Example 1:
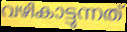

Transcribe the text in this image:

വഴികാട്ടുന്നത്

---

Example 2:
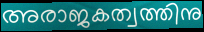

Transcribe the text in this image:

അരാജകത്വത്തിനു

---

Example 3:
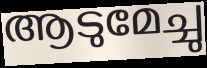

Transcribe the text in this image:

ആടുമേച്ചു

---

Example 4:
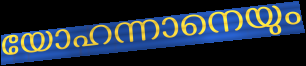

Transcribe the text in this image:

യോഹന്നാനെയും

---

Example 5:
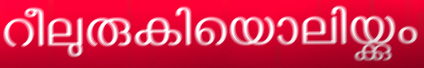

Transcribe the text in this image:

റീലുരുകിയൊലിയ്ക്കും